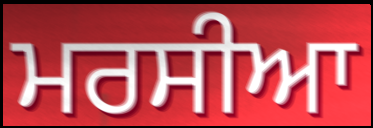
ਮਰਸੀਆ